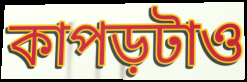
কাপড়টাও